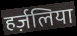
हर्ज़लिया